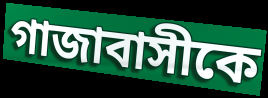
গাজাবাসীকে